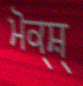
ਮੋਕ੍ਸ਼੍